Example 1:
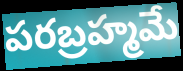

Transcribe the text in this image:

పరబ్రహ్మమే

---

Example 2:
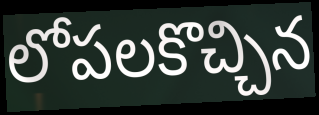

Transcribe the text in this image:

లోపలకొచ్చిన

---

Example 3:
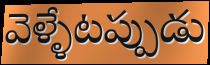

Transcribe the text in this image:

వెళ్ళేటప్పుడు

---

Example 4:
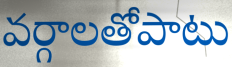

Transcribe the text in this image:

వర్గాలతోపాటు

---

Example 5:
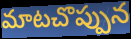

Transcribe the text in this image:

మాటచొప్పున